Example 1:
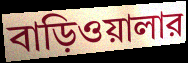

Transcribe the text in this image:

বাড়িওয়ালার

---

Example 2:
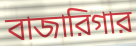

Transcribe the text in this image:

বাজারিগার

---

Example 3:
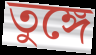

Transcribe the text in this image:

তুঙ্গে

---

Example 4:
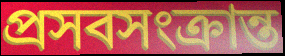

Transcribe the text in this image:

প্রসবসংক্রান্ত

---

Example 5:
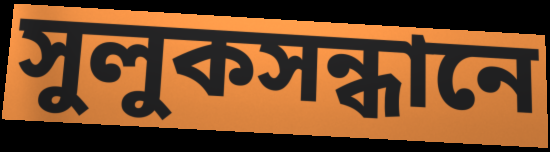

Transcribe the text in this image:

সুলুকসন্ধানে